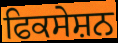
ਫਿਕਸੇਸ਼ਨ